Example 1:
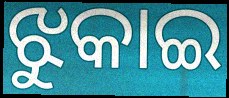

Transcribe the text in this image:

ଝୁକାଇ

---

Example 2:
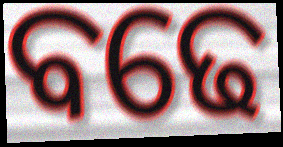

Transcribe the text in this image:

ବଢେ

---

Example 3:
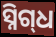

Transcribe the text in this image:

ସ୍ନିଗ୍‍ଧ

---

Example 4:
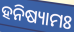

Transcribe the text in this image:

ହନିଷ୍ୟାମଃ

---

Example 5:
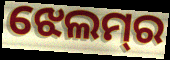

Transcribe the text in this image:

ଝେଲମ୍‌ର